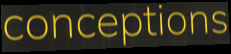
conceptions